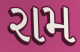
રામ